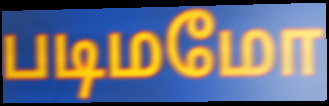
படிமமோ